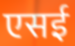
एसई